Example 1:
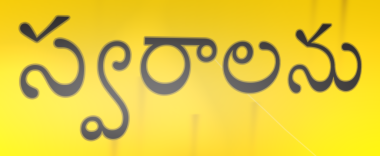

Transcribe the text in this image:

స్వరాలను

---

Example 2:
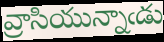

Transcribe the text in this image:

వ్రాసియున్నాఁడు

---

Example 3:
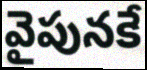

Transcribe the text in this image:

వైపునకే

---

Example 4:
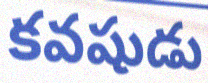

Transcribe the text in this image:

కవషుడు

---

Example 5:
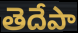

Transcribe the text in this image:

తెదేపా